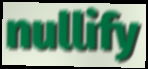
nullify